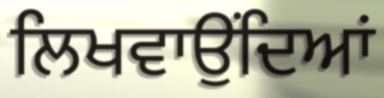
ਲਿਖਵਾਉਂਦਿਆਂ